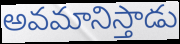
అవమానిస్తాడు